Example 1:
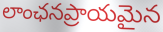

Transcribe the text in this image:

లాంఛనప్రాయమైన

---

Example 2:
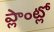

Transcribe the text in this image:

ప్లాంట్లో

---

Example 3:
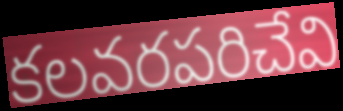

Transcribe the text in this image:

కలవరపరిచేవి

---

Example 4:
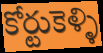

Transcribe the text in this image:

కోర్టుకెళ్ళి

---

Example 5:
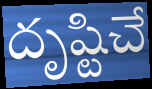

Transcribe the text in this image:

దృష్టిచే